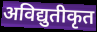
अविद्युतीकृत